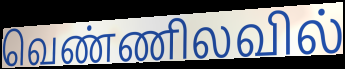
வெண்ணிலவில்